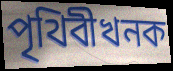
পৃথিবীখনক